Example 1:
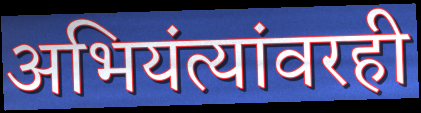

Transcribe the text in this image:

अभियंत्यांवरही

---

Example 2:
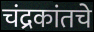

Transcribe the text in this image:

चंद्रकांतचे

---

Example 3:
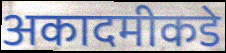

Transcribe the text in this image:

अकादमीकडे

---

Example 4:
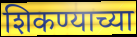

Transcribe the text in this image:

शिकण्याच्या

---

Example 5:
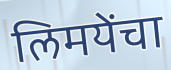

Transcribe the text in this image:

लिमयेंचा